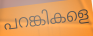
പറങ്കികളെ